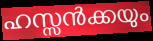
ഹസ്സൻക്കയും